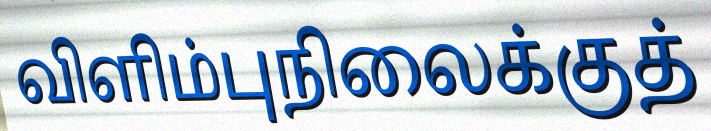
விளிம்புநிலைக்குத்